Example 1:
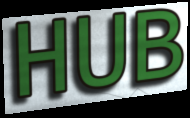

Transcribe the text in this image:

HUB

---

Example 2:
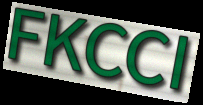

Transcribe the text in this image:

FKCCI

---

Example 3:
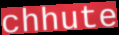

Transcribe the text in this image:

chhute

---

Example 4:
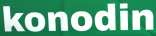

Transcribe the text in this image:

konodin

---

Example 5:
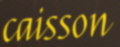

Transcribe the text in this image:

caisson